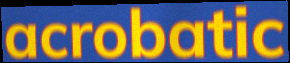
acrobatic